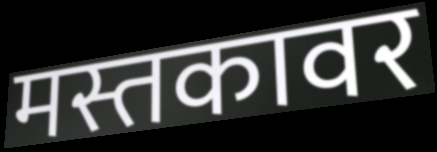
मस्तकावर